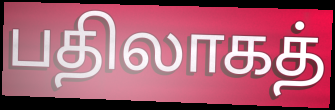
பதிலாகத்